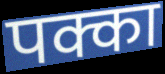
पक्का